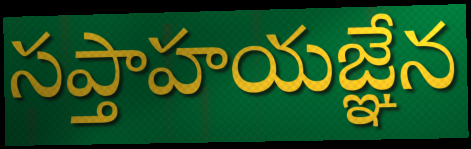
సప్తాహయజ్ఞేన